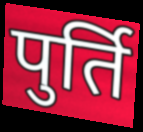
पुर्ति